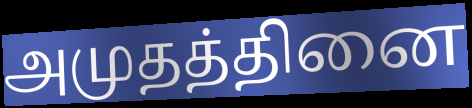
அமுதத்தினை